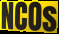
NCOs